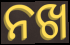
ନଖ